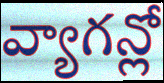
వ్యాగన్లో